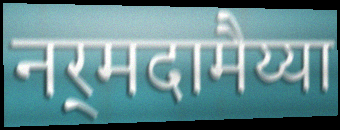
नर्मदामैय्या